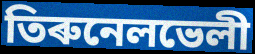
তিৰুনেলভেলী